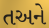
તઅને